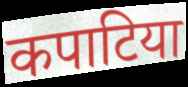
कपाटिया